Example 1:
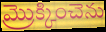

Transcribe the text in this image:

మ్రొక్కించెను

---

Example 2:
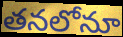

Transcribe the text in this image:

తనలోనూ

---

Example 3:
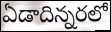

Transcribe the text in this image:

ఏడాదిన్నరలో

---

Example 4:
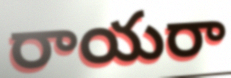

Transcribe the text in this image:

రాయరా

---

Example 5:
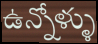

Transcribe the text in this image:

ఉన్నోళ్ళు